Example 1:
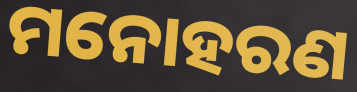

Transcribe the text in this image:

ମନୋହରଣ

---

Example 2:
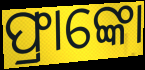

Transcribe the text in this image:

ଫ୍ରାଙ୍କୋ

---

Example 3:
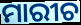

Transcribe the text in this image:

ମାରୀଚ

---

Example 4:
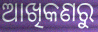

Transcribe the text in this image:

ଆଖିକଣରୁ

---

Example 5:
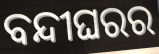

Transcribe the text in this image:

ବନ୍ଦୀଘରର